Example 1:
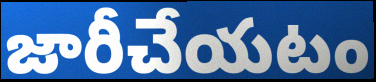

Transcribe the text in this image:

జారీచేయటం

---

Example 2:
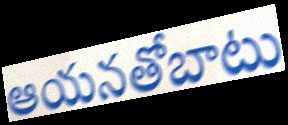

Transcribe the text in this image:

ఆయనతోబాటు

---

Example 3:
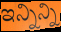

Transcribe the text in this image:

ఇన్నిన్ని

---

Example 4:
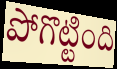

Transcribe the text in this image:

పోగొట్టింది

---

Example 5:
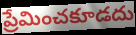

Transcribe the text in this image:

ప్రేమించకూడదు